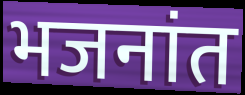
भजनांत